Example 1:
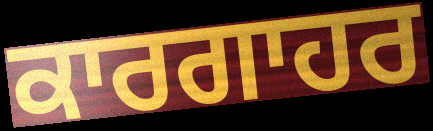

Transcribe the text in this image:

ਕਾਰਗਾਹਰ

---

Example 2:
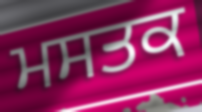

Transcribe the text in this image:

ਮਸਤਕ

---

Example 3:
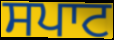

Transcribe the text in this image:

ਸਪਾਟ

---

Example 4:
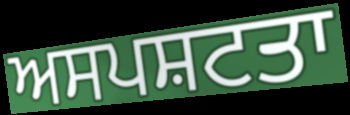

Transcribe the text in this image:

ਅਸਪਸ਼ਟਤਾ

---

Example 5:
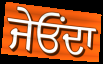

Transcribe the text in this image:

ਜੇਓੰਦਾ